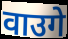
वाउगे